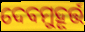
ଦେବମୁହୂର୍ତ୍ତ